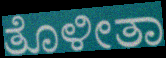
ತೊಳೀತಾ